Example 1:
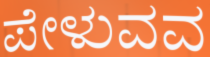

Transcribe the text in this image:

ಪೇಳುವವ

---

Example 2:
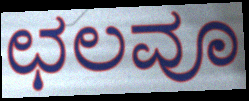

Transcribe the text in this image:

ಛಲವೂ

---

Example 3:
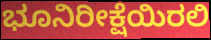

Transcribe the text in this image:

ಭೂನಿರೀಕ್ಷೆಯಿರಲಿ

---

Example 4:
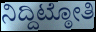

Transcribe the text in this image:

ನಿದ್ದಿಟ್ಠೋತಿ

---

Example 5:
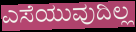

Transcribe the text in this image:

ಎಸೆಯುವುದಿಲ್ಲ